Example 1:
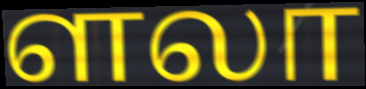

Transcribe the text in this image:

ளலா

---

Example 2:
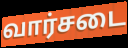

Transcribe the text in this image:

வார்சடை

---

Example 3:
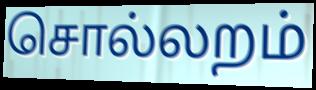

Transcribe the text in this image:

சொல்லறம்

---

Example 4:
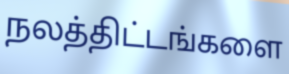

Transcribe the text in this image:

நலத்திட்டங்களை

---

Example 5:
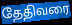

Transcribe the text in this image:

தேதிவரை